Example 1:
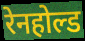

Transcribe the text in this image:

रेनहोल्ड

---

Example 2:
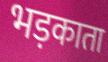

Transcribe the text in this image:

भड़काता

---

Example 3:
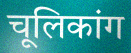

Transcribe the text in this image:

चूलिकांग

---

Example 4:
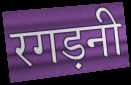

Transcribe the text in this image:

रगड़नी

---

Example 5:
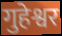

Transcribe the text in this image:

गुहेश्वर